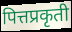
पित्तप्रकृती